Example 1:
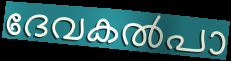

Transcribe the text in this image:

ദേവകൽപാ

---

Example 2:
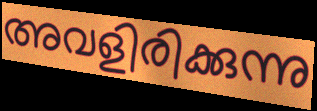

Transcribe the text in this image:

അവളിരിക്കുന്നു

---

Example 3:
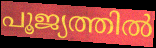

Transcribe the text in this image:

പൂജ്യത്തിൽ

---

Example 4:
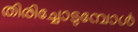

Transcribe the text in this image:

തിരിച്ചോടുമ്പോൾ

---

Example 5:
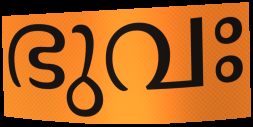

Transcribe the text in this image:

ഭുവഃ